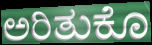
ಅರಿತುಕೊ